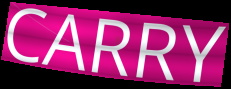
CARRY